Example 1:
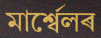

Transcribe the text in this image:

মাৰ্শ্বেলৰ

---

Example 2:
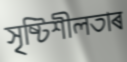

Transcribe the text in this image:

সৃষ্টিশীলতাৰ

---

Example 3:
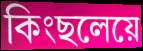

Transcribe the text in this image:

কিংছলেয়ে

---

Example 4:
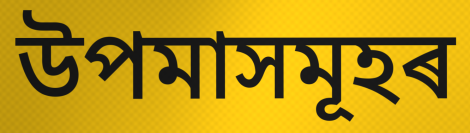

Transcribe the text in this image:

উপমাসমূহৰ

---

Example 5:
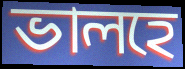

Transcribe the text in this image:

ভালহে